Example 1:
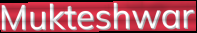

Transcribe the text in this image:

Mukteshwar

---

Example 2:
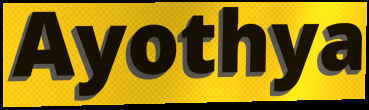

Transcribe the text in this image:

Ayothya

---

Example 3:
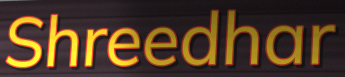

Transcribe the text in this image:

Shreedhar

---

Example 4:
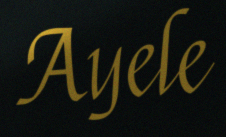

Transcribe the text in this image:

Ayele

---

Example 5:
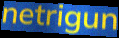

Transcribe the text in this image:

netrigun